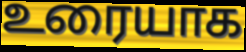
உரையாக